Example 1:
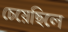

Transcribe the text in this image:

চেয়েছিলে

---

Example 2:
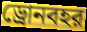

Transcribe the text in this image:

ড্রোনবহর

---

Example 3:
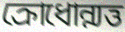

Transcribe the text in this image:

ক্রোধোন্মত্ত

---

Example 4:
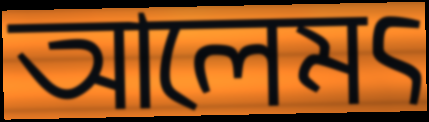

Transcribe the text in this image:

আলেমৎ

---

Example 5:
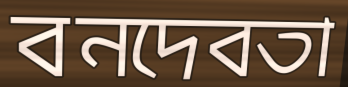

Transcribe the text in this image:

বনদেবতা